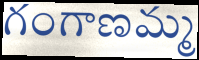
గంగాణమ్మ